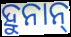
ହୁନାନ୍